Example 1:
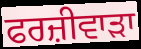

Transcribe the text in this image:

ਫਰਜ਼ੀਵਾੜਾ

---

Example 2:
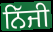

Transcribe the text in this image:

ਨਿੱਜੀ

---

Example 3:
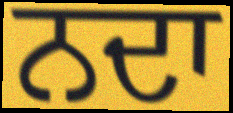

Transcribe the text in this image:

ਨਦਾ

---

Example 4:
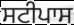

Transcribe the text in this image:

ਸਟੀਪਾਸ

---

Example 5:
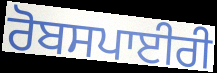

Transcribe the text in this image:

ਰੋਬਸਪਾਈਰੀ